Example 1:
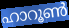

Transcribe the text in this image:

ഹാറൂൺ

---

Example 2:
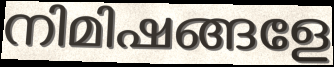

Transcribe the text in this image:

നിമിഷങ്ങളേ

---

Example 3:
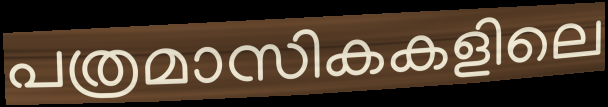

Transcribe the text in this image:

പത്രമാസികകളിലെ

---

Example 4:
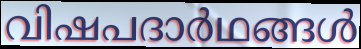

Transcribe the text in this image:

വിഷപദാർഥങ്ങൾ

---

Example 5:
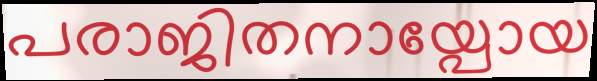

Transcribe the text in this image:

പരാജിതനായ്പോയ